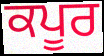
ਕਪੂਰ